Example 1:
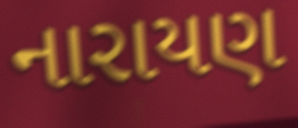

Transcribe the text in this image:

નારાયણ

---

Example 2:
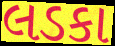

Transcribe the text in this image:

લડકા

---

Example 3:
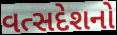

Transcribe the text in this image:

વત્સદેશનો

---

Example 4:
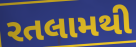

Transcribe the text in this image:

રતલામથી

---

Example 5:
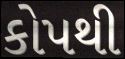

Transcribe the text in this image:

કોપથી